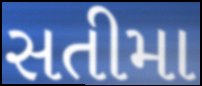
સતીમા